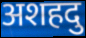
अशहदु